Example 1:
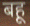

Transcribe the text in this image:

बहू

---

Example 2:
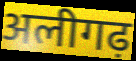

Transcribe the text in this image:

अलीगढ़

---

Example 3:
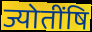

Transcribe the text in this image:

ज्योतींषि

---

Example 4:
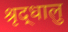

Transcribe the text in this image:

श्रृद्धालु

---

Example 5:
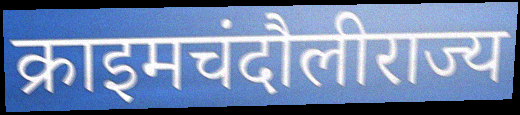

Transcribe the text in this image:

क्राइमचंदौलीराज्य